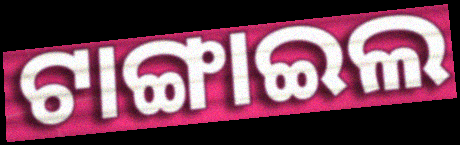
ଟାଙ୍ଗାଇଲ